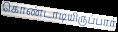
கொண்டாடியிருப்பார்